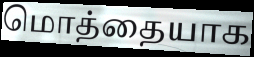
மொத்தையாக